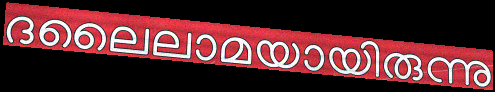
ദലൈലാമയായിരുന്നു